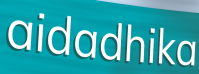
aidadhika